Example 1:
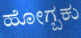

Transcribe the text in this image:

ಹೋಗ್ಬಕು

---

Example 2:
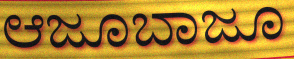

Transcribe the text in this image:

ಆಜೂಬಾಜೂ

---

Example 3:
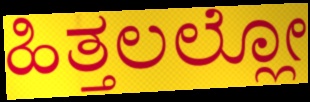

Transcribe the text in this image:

ಹಿತ್ತಲಲ್ಲೋ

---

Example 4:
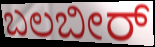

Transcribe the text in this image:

ಬಲಬೀರ್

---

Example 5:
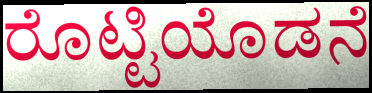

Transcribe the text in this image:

ರೊಟ್ಟಿಯೊಡನೆ